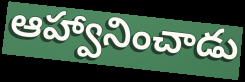
ఆహ్వానించాడు